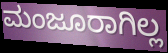
ಮಂಜೂರಾಗಿಲ್ಲ